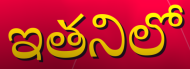
ఇతనిలో